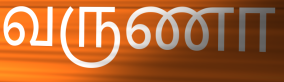
வருணா